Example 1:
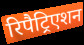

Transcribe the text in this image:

रिपैट्रिएशन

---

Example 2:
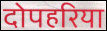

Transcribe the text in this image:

दोपहरिया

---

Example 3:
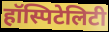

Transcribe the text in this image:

हॉस्पिटेलिटी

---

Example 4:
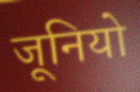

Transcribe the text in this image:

जूनियो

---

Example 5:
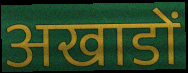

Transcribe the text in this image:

अखाडों